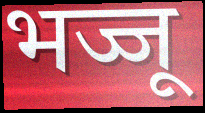
भज्जू